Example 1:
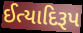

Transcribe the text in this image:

ઈત્યાદિરૂપ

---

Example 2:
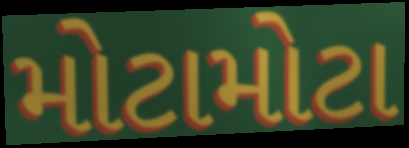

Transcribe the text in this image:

મોટામોટા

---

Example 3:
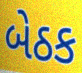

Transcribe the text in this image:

બેઠક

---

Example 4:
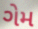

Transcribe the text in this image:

ગેમ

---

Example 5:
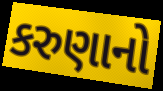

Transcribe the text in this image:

કરુણાનો